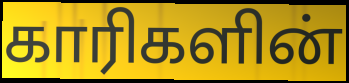
காரிகளின்